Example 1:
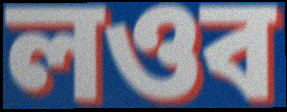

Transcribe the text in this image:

লওব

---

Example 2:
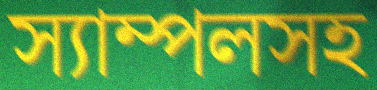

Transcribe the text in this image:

স্যাম্পলসহ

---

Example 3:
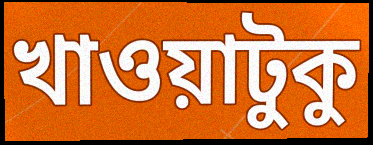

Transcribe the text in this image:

খাওয়াটুকু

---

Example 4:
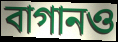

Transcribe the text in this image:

বাগানও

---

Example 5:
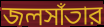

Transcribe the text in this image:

জলসাঁতার